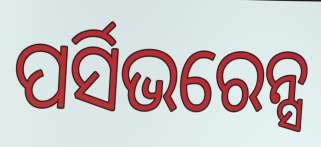
ପର୍ସିଭରେନ୍ସ